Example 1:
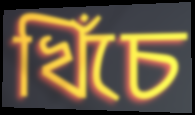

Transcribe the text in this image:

খিঁচে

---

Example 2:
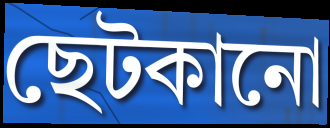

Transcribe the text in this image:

ছেটকানো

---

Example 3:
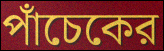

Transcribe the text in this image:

পাঁচেকের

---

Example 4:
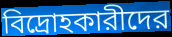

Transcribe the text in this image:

বিদ্রোহকারীদের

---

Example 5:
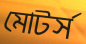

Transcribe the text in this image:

মোটর্স